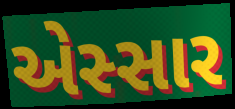
એસ્સાર